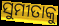
ସୁମୀତାକୁ